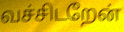
வச்சிடறேன்